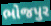
ભોજપુર